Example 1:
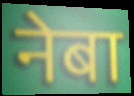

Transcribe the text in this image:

नेबा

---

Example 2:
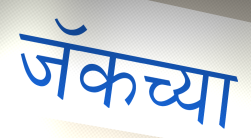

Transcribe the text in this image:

जॅकच्या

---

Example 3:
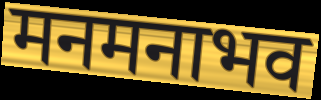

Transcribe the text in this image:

मनमनाभव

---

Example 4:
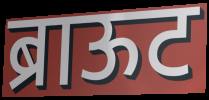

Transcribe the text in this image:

ब्राऊट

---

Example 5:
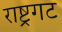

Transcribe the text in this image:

राष्ट्रगट